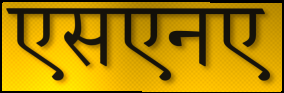
एसएनए